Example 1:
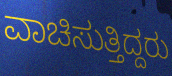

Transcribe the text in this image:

ವಾಚಿಸುತ್ತಿದ್ದರು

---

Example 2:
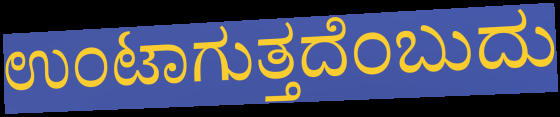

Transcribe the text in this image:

ಉಂಟಾಗುತ್ತದೆಂಬುದು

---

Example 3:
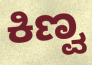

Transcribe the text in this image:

ಕಿಣ್ವ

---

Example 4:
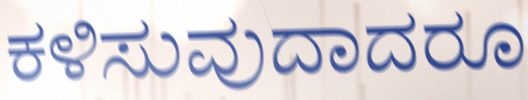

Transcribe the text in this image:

ಕಳಿಸುವುದಾದರೂ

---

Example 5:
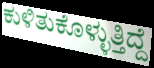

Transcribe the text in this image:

ಕುಳಿತುಕೊಳ್ಳುತ್ತಿದ್ದೆ